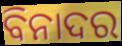
ବିନାଦର